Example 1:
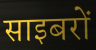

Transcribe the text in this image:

साइबरों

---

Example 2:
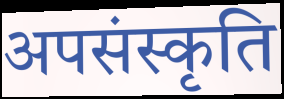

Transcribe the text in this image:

अपसंस्कृति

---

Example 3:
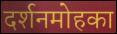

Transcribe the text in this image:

दर्शनमोहका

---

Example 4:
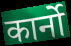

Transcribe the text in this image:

कार्नो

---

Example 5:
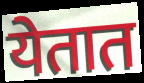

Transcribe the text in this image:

येतात